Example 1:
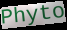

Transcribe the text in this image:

Phyto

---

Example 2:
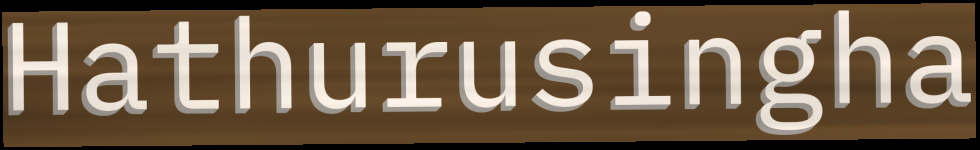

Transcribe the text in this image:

Hathurusingha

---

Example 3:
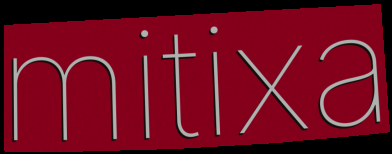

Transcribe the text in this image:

mitixa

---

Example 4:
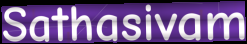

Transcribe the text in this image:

Sathasivam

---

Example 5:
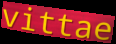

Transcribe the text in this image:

vittae